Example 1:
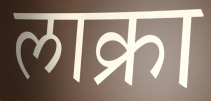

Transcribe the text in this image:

लाक्रा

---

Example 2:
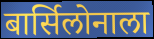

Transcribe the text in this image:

बार्सिलोनाला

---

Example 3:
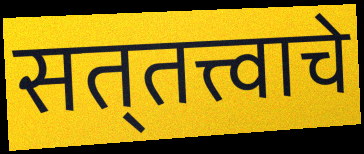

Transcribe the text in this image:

सत्‌तत्त्वाचे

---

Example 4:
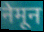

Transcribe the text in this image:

नेमून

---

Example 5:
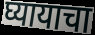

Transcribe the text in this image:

घ्यायाचा